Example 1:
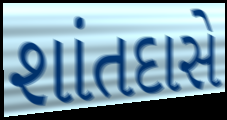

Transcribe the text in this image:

શાંતદાસે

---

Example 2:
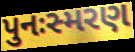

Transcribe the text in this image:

પુનઃસ્મરણ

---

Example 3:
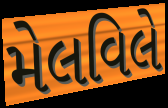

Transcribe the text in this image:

મેલવિલે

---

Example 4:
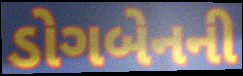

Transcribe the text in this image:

ડોગબેનની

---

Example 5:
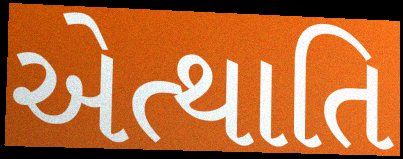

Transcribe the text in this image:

એત્થાતિ